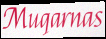
Muqarnas